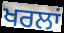
ਖਰਲਾਂ